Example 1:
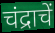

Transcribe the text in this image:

चंद्राचें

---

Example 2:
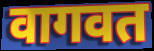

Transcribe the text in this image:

वागवत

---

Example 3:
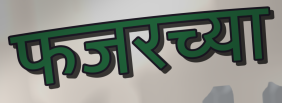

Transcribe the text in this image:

फजरच्या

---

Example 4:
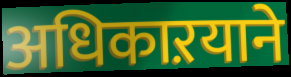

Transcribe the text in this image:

अधिकाऱयाने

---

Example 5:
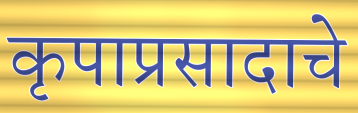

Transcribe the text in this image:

कृपाप्रसादाचे